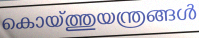
കൊയ്ത്തുയന്ത്രങ്ങൾ